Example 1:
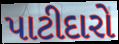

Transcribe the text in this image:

પાટીદારો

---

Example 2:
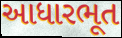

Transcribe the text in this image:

આધારભૂત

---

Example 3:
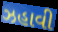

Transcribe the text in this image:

ઝહાવી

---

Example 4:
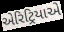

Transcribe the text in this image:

એરિટ્રિયાએ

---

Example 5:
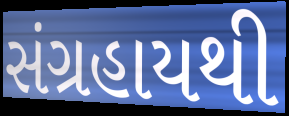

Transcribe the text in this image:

સંગ્રહાયથી